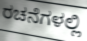
ರಚನೆಗಳಲ್ಲಿ